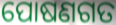
ପୋଷଣଗତ